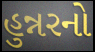
હુન્નરનો